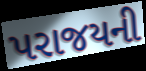
પરાજયની